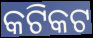
କଟିକଟ